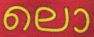
ലൊ